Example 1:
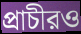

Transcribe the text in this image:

প্রাচীরও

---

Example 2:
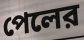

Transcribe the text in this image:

পেলের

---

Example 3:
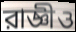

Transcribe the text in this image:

রাজ্ঞীও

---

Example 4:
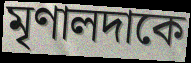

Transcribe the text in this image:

মৃণালদাকে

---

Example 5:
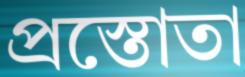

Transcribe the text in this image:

প্রস্তোতা